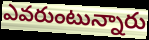
ఎవరుంటున్నారు